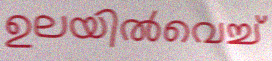
ഉലയിൽവെച്ച്